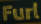
Furl